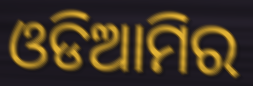
ଓଡିଆମିର